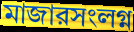
মাজারসংলগ্ন